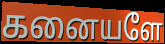
கனையளே